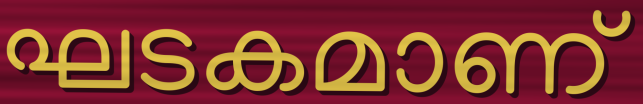
ഘടകമാണ്